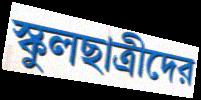
স্কুলছাত্রীদের